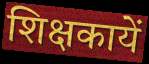
शिक्षकायें